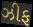
ઝીફ